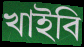
খাইবি